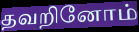
தவறினோம்